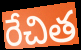
రేచిత